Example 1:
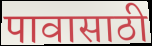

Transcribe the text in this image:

पावासाठी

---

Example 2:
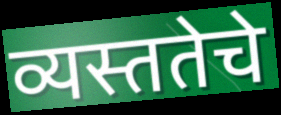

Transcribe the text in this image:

व्यस्ततेचे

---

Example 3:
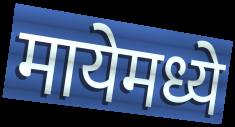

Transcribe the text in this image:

मायेमध्ये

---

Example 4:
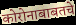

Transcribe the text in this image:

कोरोनाबाबतचे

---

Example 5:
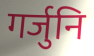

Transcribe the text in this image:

गर्जुनि